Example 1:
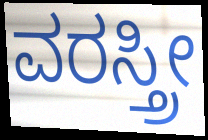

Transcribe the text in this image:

ವರಸ್ತ್ರೀ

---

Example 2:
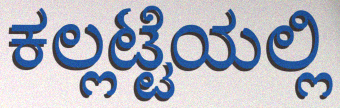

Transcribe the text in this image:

ಕಲ್ಲಟ್ಟೆಯಲ್ಲಿ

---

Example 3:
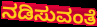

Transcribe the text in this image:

ನಡಿಸುವಂತೆ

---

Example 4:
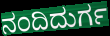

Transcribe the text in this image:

ನಂದಿದುರ್ಗ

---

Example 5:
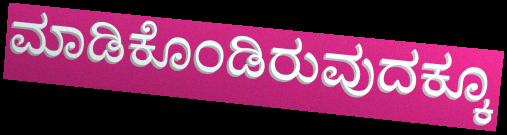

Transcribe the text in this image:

ಮಾಡಿಕೊಂಡಿರುವುದಕ್ಕೂ